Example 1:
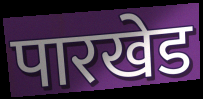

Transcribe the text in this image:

पारखेड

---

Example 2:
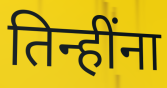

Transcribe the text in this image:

तिन्हींना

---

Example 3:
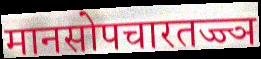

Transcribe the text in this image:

मानसोपचारतज्ज्ञ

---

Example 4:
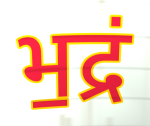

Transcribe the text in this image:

भ॒द्रं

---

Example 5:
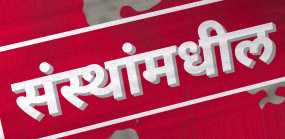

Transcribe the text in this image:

संस्थांमधील